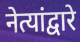
नेत्यांद्वारे